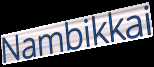
Nambikkai